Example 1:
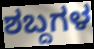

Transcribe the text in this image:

ಶಬ್ದಗಳ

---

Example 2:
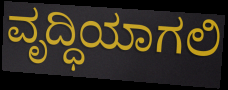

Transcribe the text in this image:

ವೃದ್ಧಿಯಾಗಲಿ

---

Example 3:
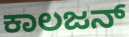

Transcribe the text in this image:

ಕಾಲಜನ್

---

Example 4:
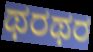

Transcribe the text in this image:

ಥರಥರ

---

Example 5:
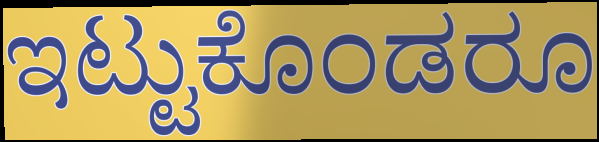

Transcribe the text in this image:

ಇಟ್ಟುಕೊಂಡರೂ